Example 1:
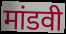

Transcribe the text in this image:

मांडवी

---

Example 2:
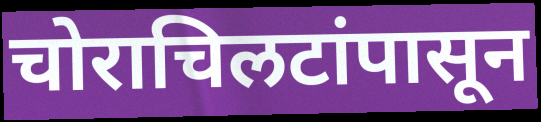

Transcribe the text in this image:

चोराचिलटांपासून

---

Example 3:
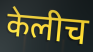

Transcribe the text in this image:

केलीच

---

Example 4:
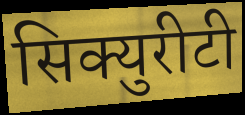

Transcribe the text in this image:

सिक्युरीटी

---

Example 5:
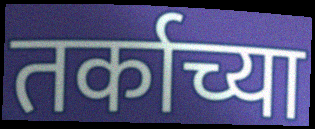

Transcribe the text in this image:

तर्काच्या